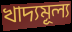
খাদ্যমূল্য